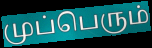
முப்பெரும்